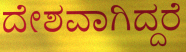
ದೇಶವಾಗಿದ್ದರೆ